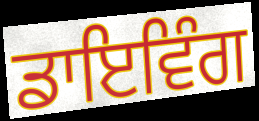
ਡਾਇਵਿੰਗ